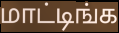
மாட்டிங்க